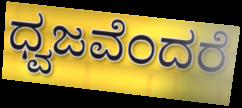
ಧ್ವಜವೆಂದರೆ